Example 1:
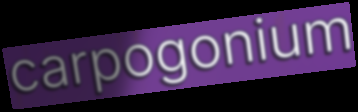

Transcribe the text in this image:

carpogonium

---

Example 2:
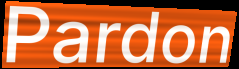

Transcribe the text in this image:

Pardon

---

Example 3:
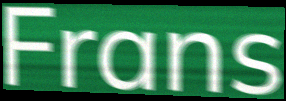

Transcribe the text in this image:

Frans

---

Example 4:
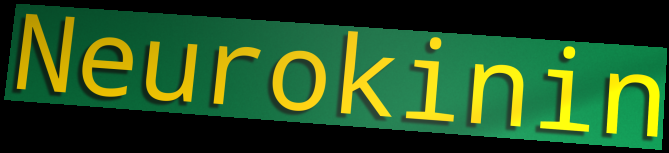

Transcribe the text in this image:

Neurokinin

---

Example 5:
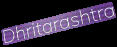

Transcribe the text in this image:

Dhritarashtra